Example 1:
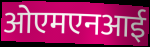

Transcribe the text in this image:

ओएमएनआई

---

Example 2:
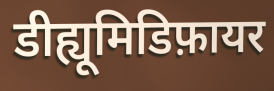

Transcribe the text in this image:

डीह्यूमिडिफ़ायर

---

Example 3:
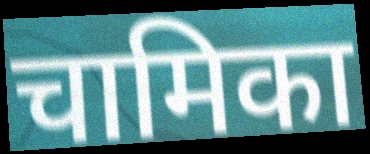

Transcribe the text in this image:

चामिका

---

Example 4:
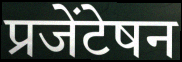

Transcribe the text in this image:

प्रजेंटेषन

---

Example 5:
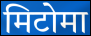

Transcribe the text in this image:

मिटोमा